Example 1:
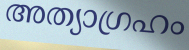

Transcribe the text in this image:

അത്യാഗ്രഹം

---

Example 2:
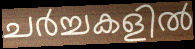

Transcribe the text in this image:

ചർച്ചകളിൽ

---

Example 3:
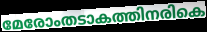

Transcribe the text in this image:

മേരോംതടാകത്തിനരികെ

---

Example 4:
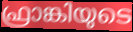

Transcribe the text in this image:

ഫ്രാങ്കിയുടെ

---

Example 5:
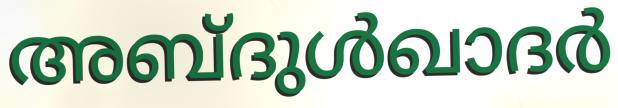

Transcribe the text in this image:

അബ്ദുൾഖാദർ